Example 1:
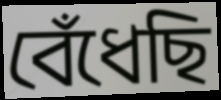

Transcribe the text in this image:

বেঁধেছি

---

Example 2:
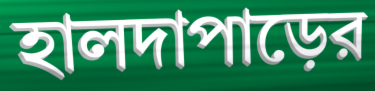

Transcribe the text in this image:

হালদাপাড়ের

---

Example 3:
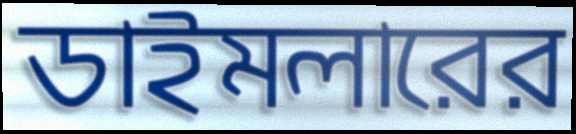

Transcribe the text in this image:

ডাইমলারের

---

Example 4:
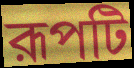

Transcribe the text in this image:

রূপটি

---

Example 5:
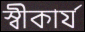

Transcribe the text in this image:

স্বীকার্য